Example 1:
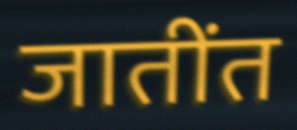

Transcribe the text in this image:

जातींत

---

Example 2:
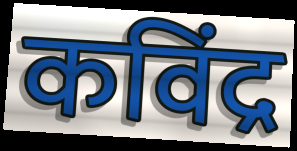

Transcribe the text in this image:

कविंद्र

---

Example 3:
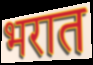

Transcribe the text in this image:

भरात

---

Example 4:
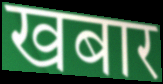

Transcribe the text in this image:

खबार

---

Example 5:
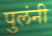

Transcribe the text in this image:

पुलंनी